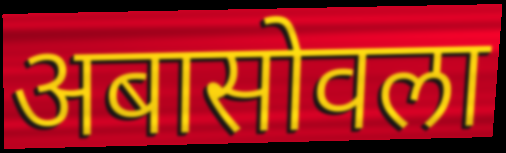
अबासोवला